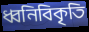
ধ্বনিবিকৃতি